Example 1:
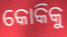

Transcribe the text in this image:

କୋକିକୁ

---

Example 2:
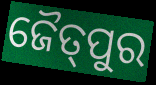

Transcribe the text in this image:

ଜୈତ୍‌ପୁର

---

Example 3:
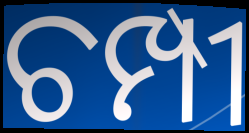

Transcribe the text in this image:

ଚମ୍ପୀ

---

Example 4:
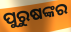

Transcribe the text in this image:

ପୁରୁଷଙ୍କର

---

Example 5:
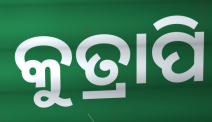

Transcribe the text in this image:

କୁତ୍ରାପି